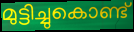
മുട്ടിച്ചുകൊണ്ട്